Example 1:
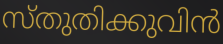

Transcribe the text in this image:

സ്തുതിക്കുവിൻ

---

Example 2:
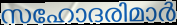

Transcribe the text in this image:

സഹോദരിമാർ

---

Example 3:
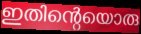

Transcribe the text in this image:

ഇതിന്റെയൊരു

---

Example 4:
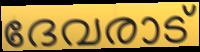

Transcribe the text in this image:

ദേവരാട്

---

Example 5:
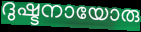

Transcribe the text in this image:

ദുഷ്ടനായോരു